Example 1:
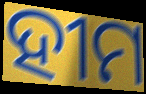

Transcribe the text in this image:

ହୀମ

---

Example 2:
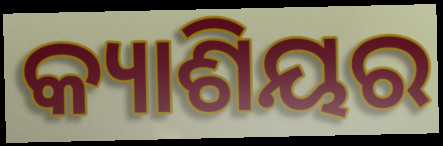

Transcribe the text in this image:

କ୍ୟାଶିୟର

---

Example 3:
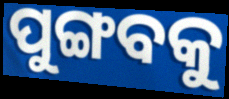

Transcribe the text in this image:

ପୁଙ୍ଗବକୁ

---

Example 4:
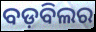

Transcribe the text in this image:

ବଡ଼ବିଲର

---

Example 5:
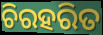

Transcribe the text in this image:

ଚିରହରିତ